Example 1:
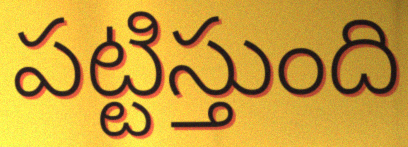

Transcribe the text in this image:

పట్టిస్తుంది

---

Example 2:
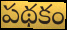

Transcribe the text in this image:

పథకం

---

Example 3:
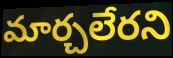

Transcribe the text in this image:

మార్చలేరని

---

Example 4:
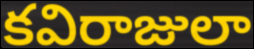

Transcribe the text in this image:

కవిరాజులా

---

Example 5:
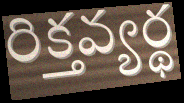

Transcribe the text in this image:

రిక్తవ్యర్థ